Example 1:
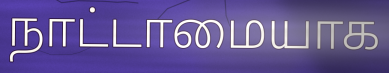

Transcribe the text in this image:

நாட்டாமையாக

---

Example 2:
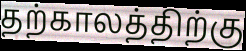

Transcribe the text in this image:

தற்காலத்திற்கு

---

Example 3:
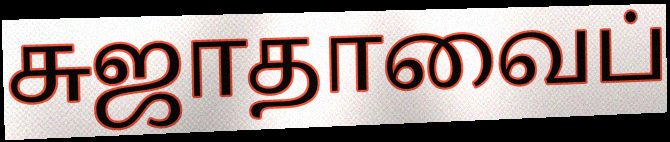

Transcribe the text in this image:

சுஜாதாவைப்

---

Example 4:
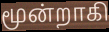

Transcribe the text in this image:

மூன்றாகி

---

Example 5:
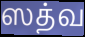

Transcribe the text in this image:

ஸத்வ